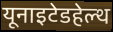
यूनाइटेडहेल्थ